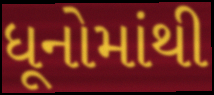
ધૂનોમાંથી